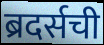
ब्रदर्सची